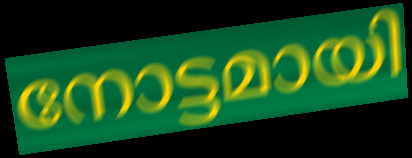
നോട്ടമായി